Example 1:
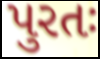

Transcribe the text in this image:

પુરતઃ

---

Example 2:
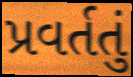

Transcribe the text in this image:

પ્રવર્તતું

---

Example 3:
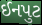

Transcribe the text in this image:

ઈનપુટ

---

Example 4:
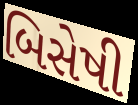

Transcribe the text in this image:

બિસેષી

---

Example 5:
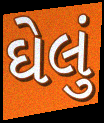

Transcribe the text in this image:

ઘેલું